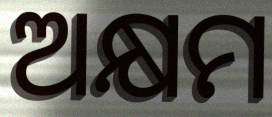
ଅକ୍ଷମ